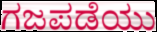
ಗಜಪಡೆಯು